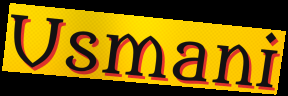
Usmani